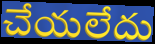
చేయలేదు